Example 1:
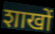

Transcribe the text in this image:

शाखों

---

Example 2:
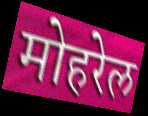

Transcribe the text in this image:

मोहरेल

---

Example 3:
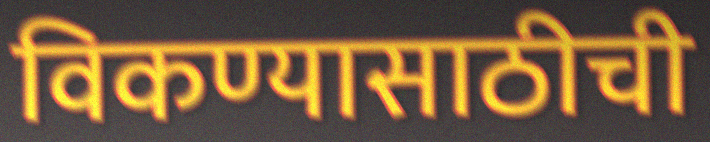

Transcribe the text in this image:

विकण्यासाठीची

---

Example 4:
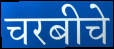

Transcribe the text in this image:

चरबीचे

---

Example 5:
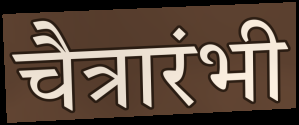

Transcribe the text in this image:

चैत्रारंभी